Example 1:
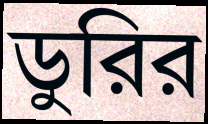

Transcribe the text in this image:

ডুরির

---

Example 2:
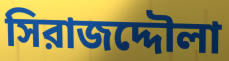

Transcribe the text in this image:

সিরাজদ্দৌলা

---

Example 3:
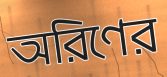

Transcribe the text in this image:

অরিণের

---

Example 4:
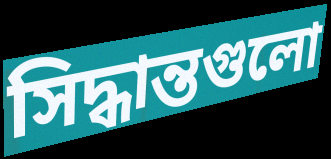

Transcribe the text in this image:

সিদ্ধান্তগুলো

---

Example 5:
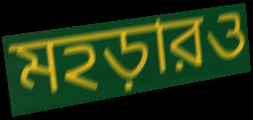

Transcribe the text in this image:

মহড়ারও